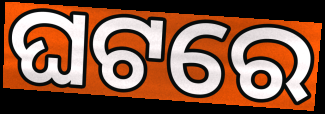
ଘଟରେ